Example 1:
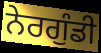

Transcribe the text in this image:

ਨੇਰਗੁੰਡੀ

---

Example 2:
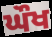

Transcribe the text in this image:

ਘੌਖ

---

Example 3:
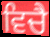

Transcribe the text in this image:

ਵਿਚੈ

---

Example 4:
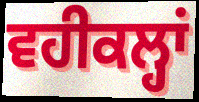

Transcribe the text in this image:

ਵਹੀਕਲ੍ਹਾਂ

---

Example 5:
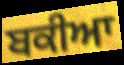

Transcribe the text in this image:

ਬਕੀਆ